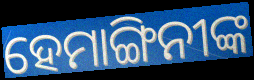
ହେମାଙ୍ଗିନୀଙ୍କ